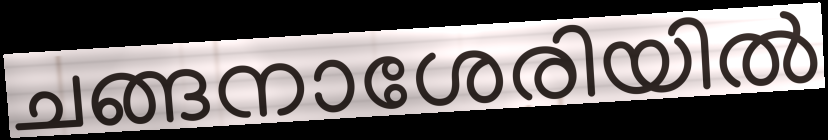
ചങ്ങനാശേരിയിൽ